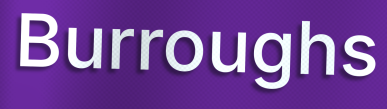
Burroughs